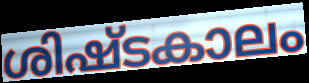
ശിഷ്ടകാലം